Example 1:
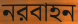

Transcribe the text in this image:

নরবাহন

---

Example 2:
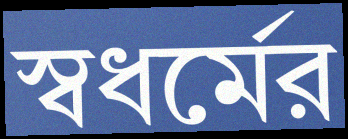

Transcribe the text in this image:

স্বধর্মের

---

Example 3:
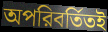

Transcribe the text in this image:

অপরিবর্তিতই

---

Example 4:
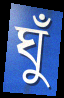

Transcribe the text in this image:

ঘুঁ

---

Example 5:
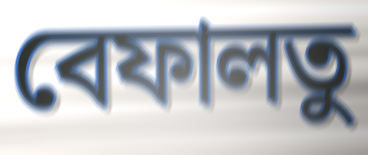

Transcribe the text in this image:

বেফালতু